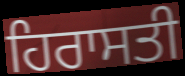
ਹਿਰਾਸਤੀ